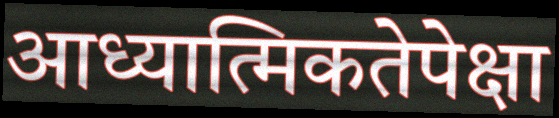
आध्यात्मिकतेपेक्षा